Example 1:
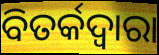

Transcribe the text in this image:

ବିତର୍କଦ୍ୱାରା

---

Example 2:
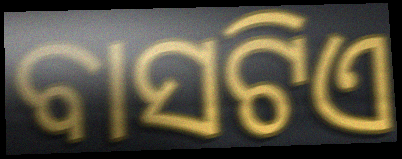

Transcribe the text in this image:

ବାସଟିଏ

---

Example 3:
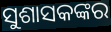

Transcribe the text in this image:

ସୁଶାସକଙ୍କର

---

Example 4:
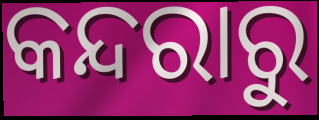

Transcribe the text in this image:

କନ୍ଦରାରୁ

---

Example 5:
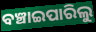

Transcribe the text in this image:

ବଞ୍ଚାଇପାରିଲୁ